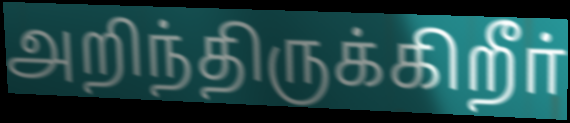
அறிந்திருக்கிறீர்